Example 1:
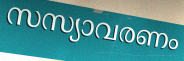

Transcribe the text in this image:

സസ്യാവരണം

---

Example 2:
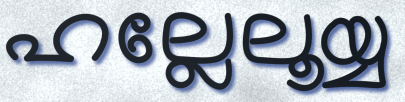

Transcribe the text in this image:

ഹല്ലേലൂയ്യ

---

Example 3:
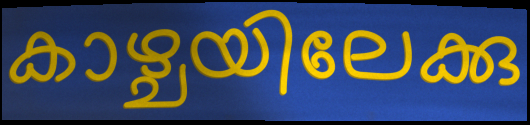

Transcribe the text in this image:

കാഴ്ചയിലേക്കു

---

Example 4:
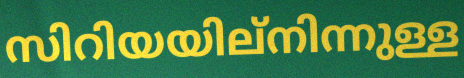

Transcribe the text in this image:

സിറിയയില്നിന്നുള്ള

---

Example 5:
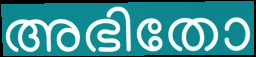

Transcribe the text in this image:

അഭിതോ